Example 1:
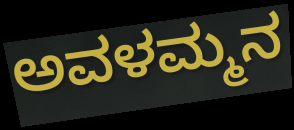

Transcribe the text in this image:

ಅವಳಮ್ಮನ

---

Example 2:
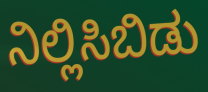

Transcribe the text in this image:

ನಿಲ್ಲಿಸಿಬಿಡು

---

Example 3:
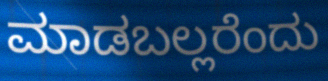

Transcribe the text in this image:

ಮಾಡಬಲ್ಲರೆಂದು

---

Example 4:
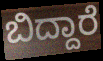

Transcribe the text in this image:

ಬಿದ್ದಾರೆ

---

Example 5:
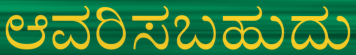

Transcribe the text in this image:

ಆವರಿಸಬಹುದು